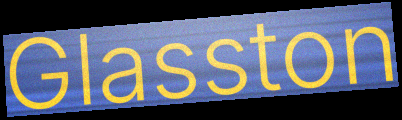
Glasston